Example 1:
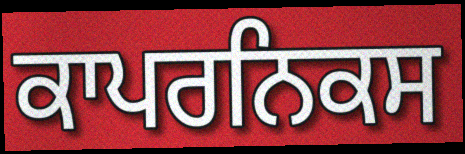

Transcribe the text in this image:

ਕਾਪਰਨਿਕਸ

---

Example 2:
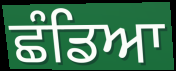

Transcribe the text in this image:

ਛੰਡਿਆ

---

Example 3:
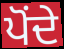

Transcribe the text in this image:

ਪੋਂਦੇ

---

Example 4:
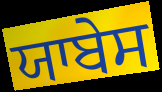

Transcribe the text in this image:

ਯਾਬੇਸ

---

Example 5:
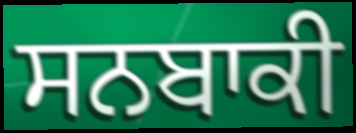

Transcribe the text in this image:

ਸਨਬਾਕੀ